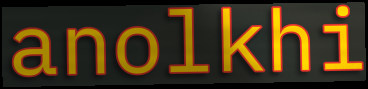
anolkhi